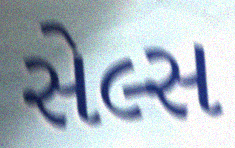
સેલ્સ